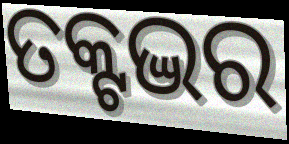
ତକ୍ଟଦ୍ଭର